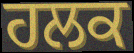
ਹਲਕ